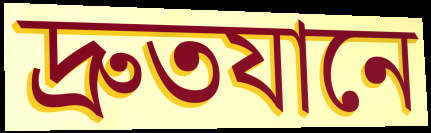
দ্রুতযানে